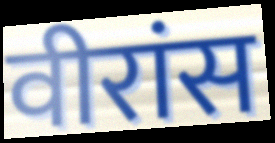
वीरांस